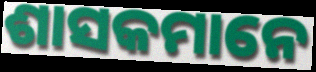
ଶାସକମାନେ